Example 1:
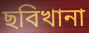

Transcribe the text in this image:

ছবিখানা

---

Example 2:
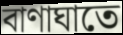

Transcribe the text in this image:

বাণাঘাতে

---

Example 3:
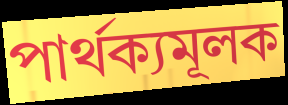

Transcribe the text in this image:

পার্থক্যমূলক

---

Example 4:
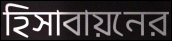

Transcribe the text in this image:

হিসাবায়নের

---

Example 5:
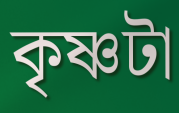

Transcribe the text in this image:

কৃষ্ণটা